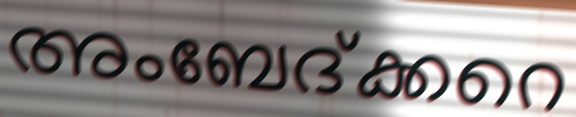
അംബേദ്ക്കറെ